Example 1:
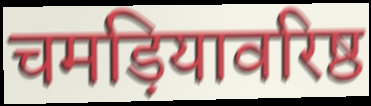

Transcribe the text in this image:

चमड़ियावरिष्ठ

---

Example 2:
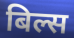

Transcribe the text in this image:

बिल्स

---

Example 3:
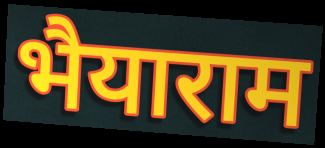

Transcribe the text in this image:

भैयाराम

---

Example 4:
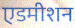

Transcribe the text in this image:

एडमीशन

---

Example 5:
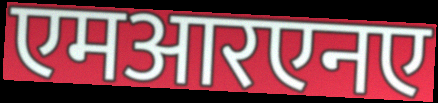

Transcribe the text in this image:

एमआरएनए